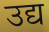
उद्य